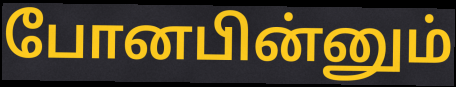
போனபின்னும்